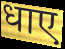
धाए